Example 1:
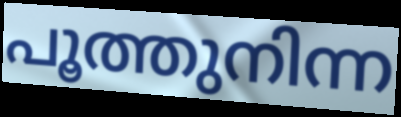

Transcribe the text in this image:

പൂത്തുനിന്ന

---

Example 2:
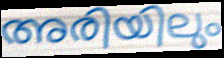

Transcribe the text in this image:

അരിയിലും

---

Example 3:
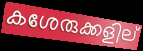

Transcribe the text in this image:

കശേരുക്കളില്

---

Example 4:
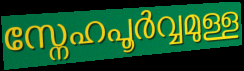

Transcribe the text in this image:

സ്നേഹപൂർവ്വമുള്ള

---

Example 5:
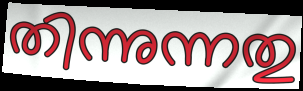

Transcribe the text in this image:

തിന്നുന്നതു